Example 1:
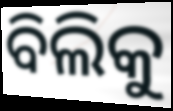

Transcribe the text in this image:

ବିଲିକୁ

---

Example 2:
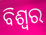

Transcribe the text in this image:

ବିଶ୍ଵର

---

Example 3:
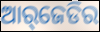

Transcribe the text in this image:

ଆର୍‌ଜେଡିର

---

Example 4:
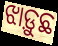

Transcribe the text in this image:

ଝାଡ଼ୁଛ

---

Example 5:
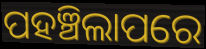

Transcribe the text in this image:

ପହଞ୍ଚିଲାପରେ